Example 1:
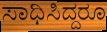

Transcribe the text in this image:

ಸಾಧಿಸಿದ್ದರೂ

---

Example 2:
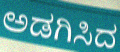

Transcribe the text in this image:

ಅಡಗಿಸಿದ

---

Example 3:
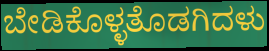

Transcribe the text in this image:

ಬೇಡಿಕೊಳ್ಳತೊಡಗಿದಳು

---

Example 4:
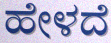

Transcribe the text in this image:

ಹೇಳದೆ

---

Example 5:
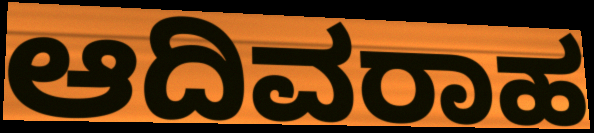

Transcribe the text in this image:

ಆದಿವರಾಹ